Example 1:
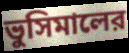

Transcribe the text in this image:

ভুসিমালের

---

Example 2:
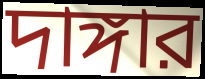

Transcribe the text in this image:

দাঙ্গার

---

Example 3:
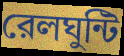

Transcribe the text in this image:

রেলঘুন্টি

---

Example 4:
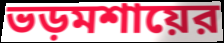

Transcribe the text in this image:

ভড়মশায়ের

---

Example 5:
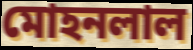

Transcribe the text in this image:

মোহনলাল